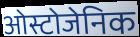
ओस्टोजेनिक